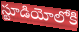
స్టూడియోలోకి